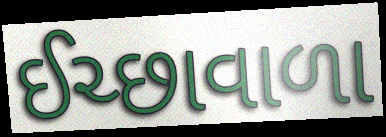
ઈચ્છાવાળા